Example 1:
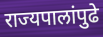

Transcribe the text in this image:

राज्यपालांपुढे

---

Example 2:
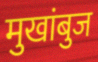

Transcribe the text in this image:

मुखांबुज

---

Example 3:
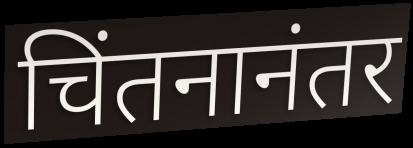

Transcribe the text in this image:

चिंतनानंतर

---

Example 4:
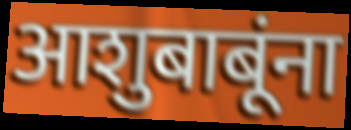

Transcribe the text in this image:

आशुबाबूंना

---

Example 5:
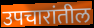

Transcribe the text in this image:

उपचारांतील